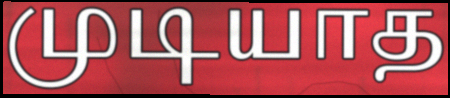
முடியாத